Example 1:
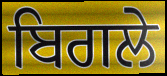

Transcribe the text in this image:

ਬਿਗਲੇ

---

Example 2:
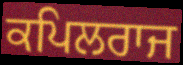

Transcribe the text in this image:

ਕਪਿਲਰਾਜ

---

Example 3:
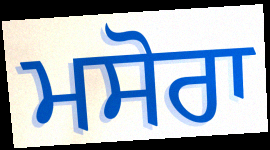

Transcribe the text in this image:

ਮਸੋਰਾ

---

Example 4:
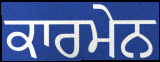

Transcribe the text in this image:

ਕਾਰਮੇਨ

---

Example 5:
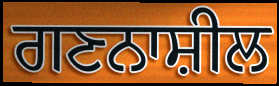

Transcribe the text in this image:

ਗਣਨਾਸ਼ੀਲ